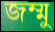
জম্মু